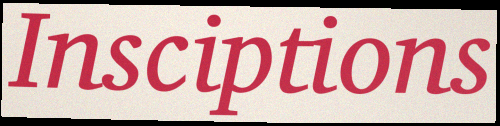
Insciptions